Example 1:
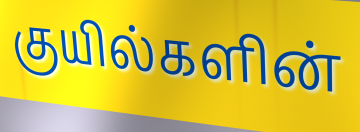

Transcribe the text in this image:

குயில்களின்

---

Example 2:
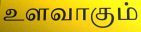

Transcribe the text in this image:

உளவாகும்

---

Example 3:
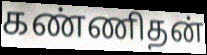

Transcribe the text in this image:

கண்ணிதன்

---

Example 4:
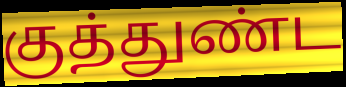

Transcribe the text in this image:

குத்துண்ட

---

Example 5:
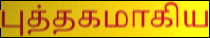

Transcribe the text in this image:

புத்தகமாகிய